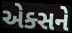
એક્સને